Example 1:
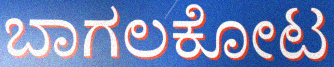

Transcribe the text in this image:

ಬಾಗಲಕೋಟ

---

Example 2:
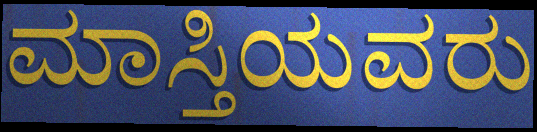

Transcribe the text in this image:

ಮಾಸ್ತಿಯವರು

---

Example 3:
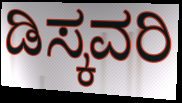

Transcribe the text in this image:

ಡಿಸ್ಕವರಿ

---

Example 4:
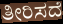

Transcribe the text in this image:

ತೀರಿಸದೆ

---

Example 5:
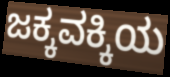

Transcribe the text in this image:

ಜಕ್ಕವಕ್ಕಿಯ